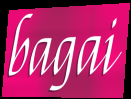
bagai